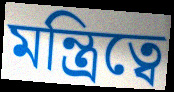
মন্ত্রিত্বে